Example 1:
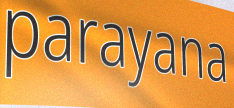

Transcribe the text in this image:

parayana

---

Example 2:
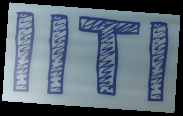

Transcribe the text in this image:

IITI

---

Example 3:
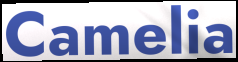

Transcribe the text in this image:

Camelia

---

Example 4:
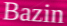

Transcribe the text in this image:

Bazin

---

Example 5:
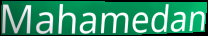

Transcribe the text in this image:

Mahamedan